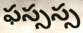
ఫస్సస్స